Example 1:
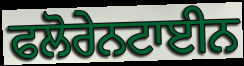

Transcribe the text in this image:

ਫਲੋਰੇਨਟਾਈਨ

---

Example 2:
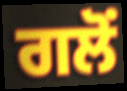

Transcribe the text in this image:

ਗਲੋਂ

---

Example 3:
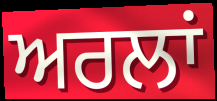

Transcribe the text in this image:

ਅਰਲਾਂ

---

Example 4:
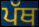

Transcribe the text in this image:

ਪੱਥ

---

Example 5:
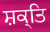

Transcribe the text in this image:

ਸ਼ਕ੍ਤਿ